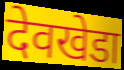
देवखेडा